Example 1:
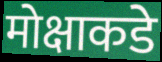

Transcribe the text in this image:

मोक्षाकडे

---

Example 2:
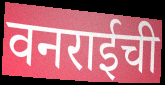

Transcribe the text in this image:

वनराईची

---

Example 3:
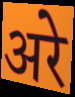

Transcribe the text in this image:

अरे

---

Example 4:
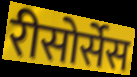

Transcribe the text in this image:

रीसोर्सेस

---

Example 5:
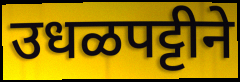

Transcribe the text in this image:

उधळपट्टीने